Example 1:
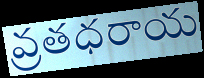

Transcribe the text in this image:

వ్రతధరాయ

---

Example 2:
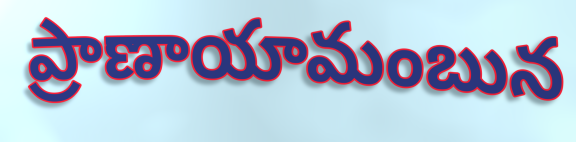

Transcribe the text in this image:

ప్రాణాయామంబున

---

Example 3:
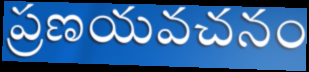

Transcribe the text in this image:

ప్రణయవచనం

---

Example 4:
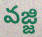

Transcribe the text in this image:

వజ్జి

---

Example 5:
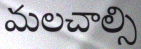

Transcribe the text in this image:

మలచాల్సి